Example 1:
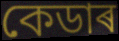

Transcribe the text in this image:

কেডাৰ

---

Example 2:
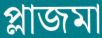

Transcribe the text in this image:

প্লাজমা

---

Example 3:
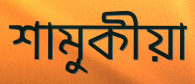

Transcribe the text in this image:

শামুকীয়া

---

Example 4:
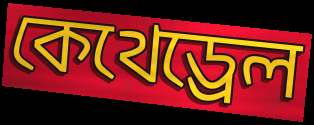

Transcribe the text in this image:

কেথেড্ৰেল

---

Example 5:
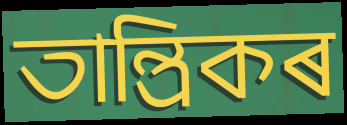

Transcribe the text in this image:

তান্ত্ৰিকৰ